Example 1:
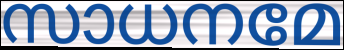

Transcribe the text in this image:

സാധനമേ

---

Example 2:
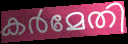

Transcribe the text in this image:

കർമേതി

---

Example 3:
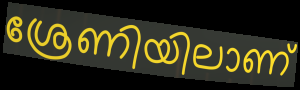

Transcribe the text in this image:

ശ്രേണിയിലാണ്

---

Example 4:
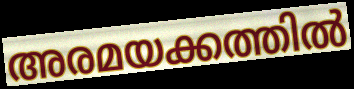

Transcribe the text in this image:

അരമയക്കത്തിൽ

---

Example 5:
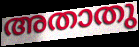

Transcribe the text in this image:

അതാതു